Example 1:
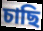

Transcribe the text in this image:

চাছি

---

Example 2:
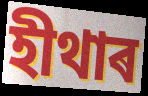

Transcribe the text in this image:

হীথাৰ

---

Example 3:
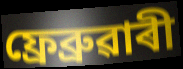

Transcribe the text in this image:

ফ্ৰেব্ৰুৱাৰী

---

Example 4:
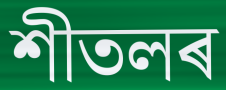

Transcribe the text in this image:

শীতলৰ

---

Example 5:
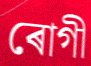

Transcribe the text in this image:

ৰোগী